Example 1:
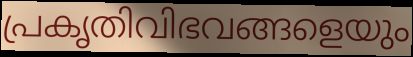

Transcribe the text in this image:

പ്രകൃതിവിഭവങ്ങളെയും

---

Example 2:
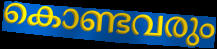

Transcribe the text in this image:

കൊണ്ടവരും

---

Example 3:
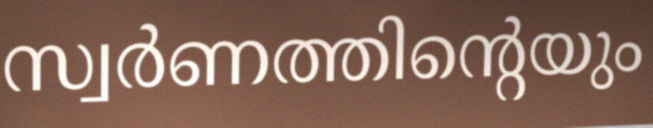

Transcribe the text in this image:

സ്വർണത്തിന്റെയും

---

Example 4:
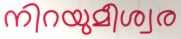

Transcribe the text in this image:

നിറയുമീശ്വര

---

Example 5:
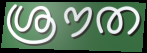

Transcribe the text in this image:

ശ്രൗത